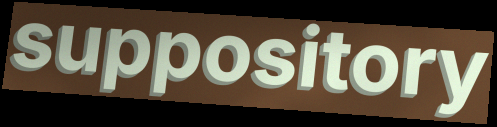
suppository